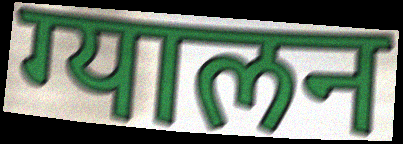
ग्यालन